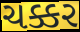
ચક્કર